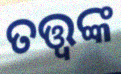
ତତ୍ତ୍ବଙ୍କ